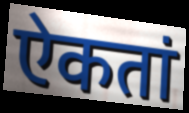
ऐकतां